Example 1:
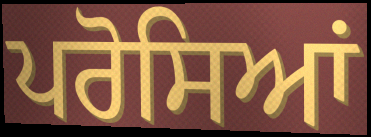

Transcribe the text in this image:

ਪਰੋਸਿਆਂ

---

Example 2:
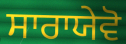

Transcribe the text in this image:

ਸਾਰਾਯੇਵੋ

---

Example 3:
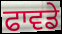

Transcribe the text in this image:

ਫਾਵਡੇ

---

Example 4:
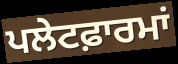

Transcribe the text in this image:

ਪਲੇਟਫ਼ਾਰਮਾਂ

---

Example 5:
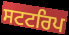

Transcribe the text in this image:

ਸਟਟਰਿਪ